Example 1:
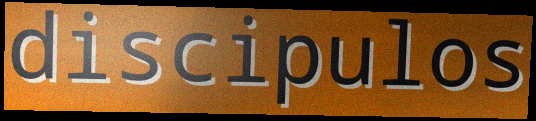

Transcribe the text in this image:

discipulos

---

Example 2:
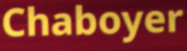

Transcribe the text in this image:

Chaboyer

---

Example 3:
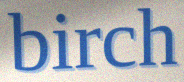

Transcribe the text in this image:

birch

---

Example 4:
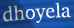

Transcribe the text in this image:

dhoyela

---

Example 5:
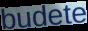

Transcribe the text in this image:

budete